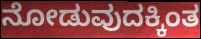
ನೋಡುವುದಕ್ಕಿಂತ